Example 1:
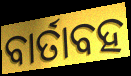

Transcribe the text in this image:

ବାର୍ତାବହ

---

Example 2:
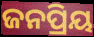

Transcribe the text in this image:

ଜନପ୍ରିୟ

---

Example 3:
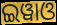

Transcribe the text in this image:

ଇୱାଓ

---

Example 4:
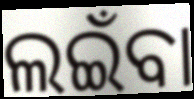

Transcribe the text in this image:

ଲଇଁବା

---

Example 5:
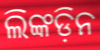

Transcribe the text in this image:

ଲିଙ୍କଡ଼ିନ